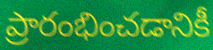
ప్రారంభించడానికీ